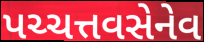
પચ્ચત્તવસેનેવ